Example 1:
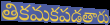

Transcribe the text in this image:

తికమకపడతారు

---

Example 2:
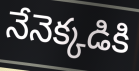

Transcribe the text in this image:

నేనెక్కడికి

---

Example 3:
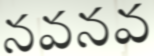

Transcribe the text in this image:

నవనవ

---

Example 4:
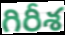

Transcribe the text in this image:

గిరీశ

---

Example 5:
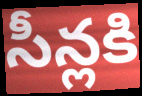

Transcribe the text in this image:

సీన్లకి